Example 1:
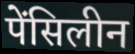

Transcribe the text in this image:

पेंसिलीन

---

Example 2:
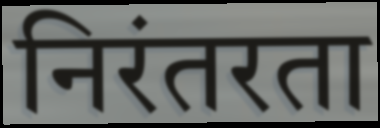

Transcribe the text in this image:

निरंतरता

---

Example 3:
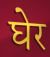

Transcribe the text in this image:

घेर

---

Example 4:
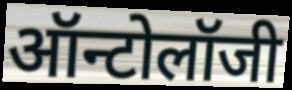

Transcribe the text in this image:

ऑन्टोलॉजी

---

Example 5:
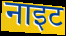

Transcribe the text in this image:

नाइट